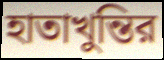
হাতাখুন্তির